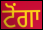
ਟੋਂਗਾ